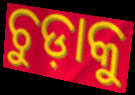
ଚୁଡ଼ାକୁ